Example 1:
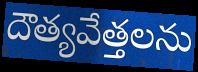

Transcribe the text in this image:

దౌత్యవేత్తలను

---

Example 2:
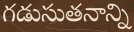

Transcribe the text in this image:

గడుసుతనాన్ని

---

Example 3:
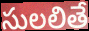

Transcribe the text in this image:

సులలితే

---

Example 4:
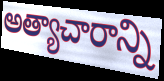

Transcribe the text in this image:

అత్యాచారాన్ని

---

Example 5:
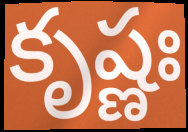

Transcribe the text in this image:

కృష్ణః